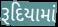
રૂદિયામાં